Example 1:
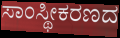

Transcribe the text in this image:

ಸಾಂಸ್ಥೀಕರಣದ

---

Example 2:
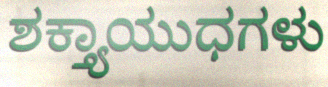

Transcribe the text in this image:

ಶಕ್ತ್ಯಾಯುಧಗಳು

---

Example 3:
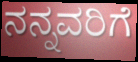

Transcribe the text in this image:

ನನ್ನವರಿಗೆ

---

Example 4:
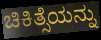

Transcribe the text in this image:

ಚಿಕಿತ್ಸೆಯನ್ನು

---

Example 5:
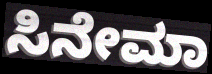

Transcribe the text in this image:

ಸಿನೇಮಾ